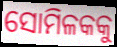
ସୋମିଳକକୁ